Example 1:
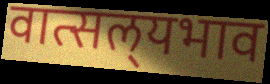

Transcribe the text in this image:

वात्सल्यभाव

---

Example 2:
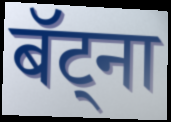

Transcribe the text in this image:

बॅट्ना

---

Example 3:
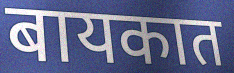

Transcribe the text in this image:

बायकात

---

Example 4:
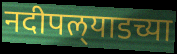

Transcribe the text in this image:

नदीपल्याडच्या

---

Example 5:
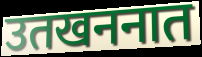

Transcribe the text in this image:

उतखननात